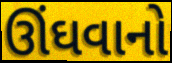
ઊંઘવાનો